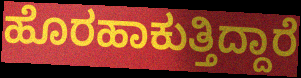
ಹೊರಹಾಕುತ್ತಿದ್ದಾರೆ